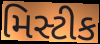
મિસ્ટીક